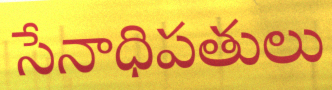
సేనాధిపతులు